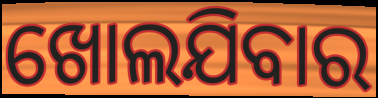
ଖୋଲଯିବାର